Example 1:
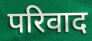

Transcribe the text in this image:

परिवाद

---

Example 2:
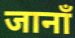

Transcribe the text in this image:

जानाँ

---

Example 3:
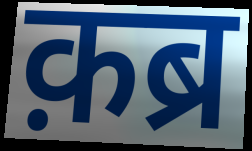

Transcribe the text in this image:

क़ब्र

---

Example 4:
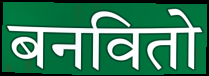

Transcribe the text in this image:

बनवितो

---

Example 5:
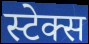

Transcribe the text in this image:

स्टेक्स